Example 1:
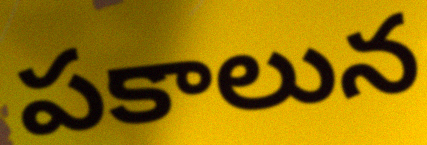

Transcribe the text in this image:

పకాలున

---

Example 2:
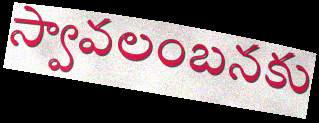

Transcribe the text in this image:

స్వావలంబనకు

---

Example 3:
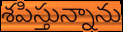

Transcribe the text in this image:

శపిస్తున్నాను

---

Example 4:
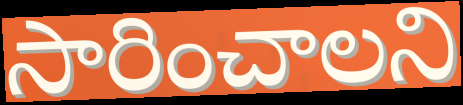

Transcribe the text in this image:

సారించాలని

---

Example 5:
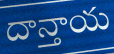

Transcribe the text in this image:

దాన్తాయ